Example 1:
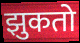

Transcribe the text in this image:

झुकतो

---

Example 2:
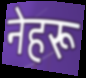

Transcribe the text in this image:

नेहरू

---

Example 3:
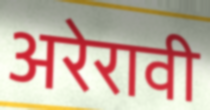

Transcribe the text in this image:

अरेरावी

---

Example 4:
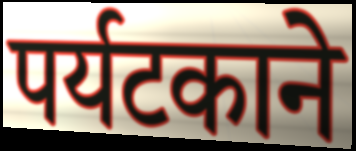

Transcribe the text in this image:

पर्यटकाने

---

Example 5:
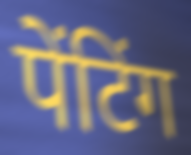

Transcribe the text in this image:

पेंटिंग